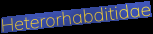
Heterorhabditidae